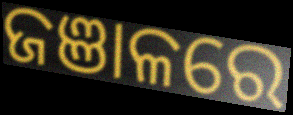
ଜଞାଳରେ